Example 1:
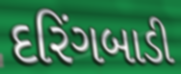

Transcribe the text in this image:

દરિંગબાડી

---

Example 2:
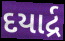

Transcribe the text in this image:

દયાર્દ્ર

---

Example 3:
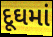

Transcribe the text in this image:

દૂઘમાં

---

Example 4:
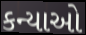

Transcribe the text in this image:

કન્યાઓ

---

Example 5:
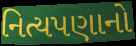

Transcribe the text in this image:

નિત્યપણાનો